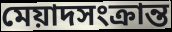
মেয়াদসংক্রান্ত